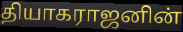
தியாகராஜனின்